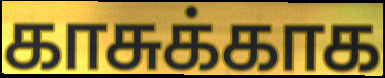
காசுக்காக